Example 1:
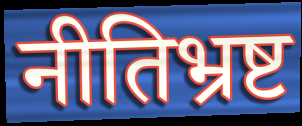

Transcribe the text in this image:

नीतिभ्रष्ट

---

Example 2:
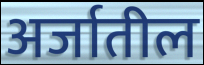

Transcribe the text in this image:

अर्जातील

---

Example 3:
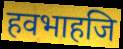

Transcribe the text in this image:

हवभाहजि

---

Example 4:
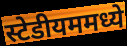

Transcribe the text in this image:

स्टेडीयममध्ये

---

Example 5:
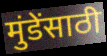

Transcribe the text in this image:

मुंडेंसाठी